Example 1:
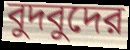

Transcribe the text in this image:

বুদবুদের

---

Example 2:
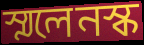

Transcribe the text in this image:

স্মলেনস্ক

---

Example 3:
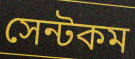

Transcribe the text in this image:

সেন্টকম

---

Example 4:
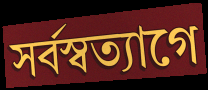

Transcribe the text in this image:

সর্বস্বত্যাগে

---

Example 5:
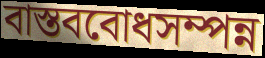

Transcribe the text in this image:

বাস্তববোধসম্পন্ন